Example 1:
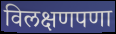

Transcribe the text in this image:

विलक्षणपणा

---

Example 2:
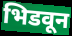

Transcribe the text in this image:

भिडवून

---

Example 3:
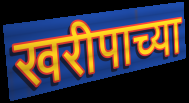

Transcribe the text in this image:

खरीपाच्या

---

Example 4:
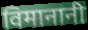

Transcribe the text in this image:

विमानानी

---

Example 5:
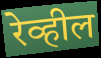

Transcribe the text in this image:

रेव्हील